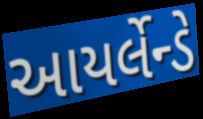
આયર્લેન્ડે